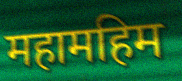
महामहिम